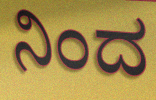
ನಿಂದ